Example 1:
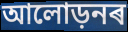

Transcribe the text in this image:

আলোড়নৰ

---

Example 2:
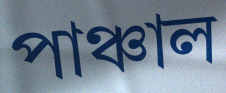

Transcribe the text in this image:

পাঞ্চাল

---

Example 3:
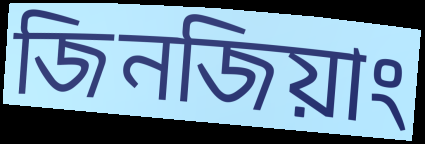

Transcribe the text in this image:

জিনজিয়াং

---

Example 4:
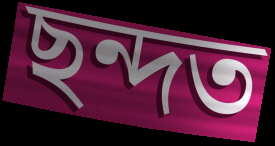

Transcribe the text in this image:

ছন্দত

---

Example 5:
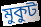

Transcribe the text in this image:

মুকুট